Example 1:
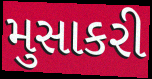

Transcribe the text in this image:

મુસાકરી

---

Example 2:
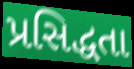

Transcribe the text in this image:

પ્રસિદ્ધતા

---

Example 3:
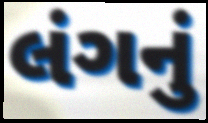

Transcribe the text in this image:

લંગનું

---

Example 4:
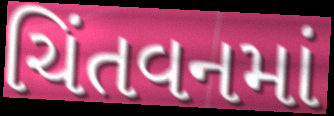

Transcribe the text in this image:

ચિંતવનમાં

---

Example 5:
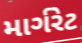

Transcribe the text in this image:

માર્ગરેટ